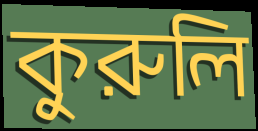
কুৰুলি